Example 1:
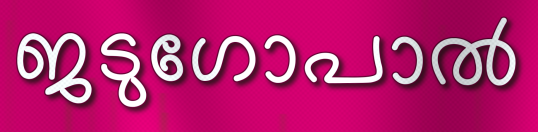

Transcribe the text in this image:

ജടുഗോപാൽ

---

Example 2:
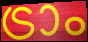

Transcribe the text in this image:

ട്രാം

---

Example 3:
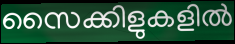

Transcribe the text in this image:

സൈക്കിളുകളിൽ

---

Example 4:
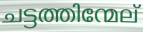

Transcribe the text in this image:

ചട്ടത്തിന്മേല്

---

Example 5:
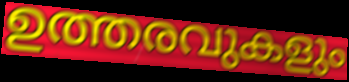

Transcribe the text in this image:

ഉത്തരവുകളും